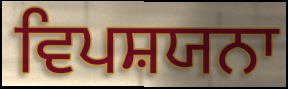
ਵਿਪਸ਼ਯਨਾ